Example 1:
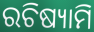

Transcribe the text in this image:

ରଚିଷ୍ୟାମି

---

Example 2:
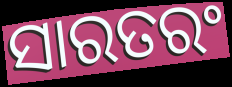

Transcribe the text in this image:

ସାରତରଂ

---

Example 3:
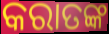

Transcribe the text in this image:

କରାତଙ୍କ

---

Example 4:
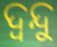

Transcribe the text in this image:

ଦ୍ଵନ୍ଦୁ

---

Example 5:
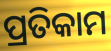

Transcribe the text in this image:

ପ୍ରତିକାମ